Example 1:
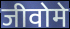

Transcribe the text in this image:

जीवोमे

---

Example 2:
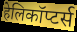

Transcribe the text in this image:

हेलिकॉप्टर्स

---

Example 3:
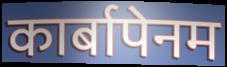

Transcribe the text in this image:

कार्बापेनम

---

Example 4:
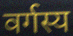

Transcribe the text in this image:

वर्गस्य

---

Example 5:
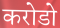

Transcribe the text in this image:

करोडो